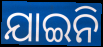
ଯାଇନି